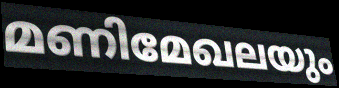
മണിമേഖലയും